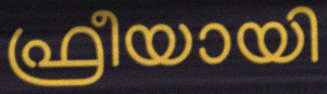
ഫ്രീയായി